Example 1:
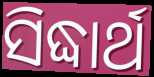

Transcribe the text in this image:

ସିଦ୍ଧାର୍ଥ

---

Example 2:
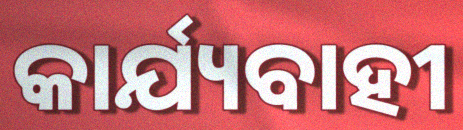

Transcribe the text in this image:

କାର୍ଯ୍ୟବାହୀ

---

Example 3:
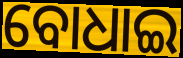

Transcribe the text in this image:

ବୋଧାଇ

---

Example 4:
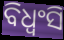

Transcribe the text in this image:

ବିଧ୍ୱଂସି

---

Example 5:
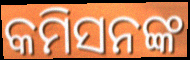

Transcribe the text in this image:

କମିସନଙ୍କ